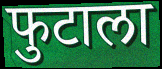
फुटाला